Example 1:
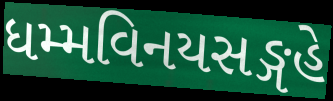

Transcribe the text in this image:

ધમ્મવિનયસઙ્ગહે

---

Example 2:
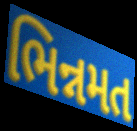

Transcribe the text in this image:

ભિન્નમત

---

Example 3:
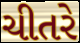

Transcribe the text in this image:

ચીતરે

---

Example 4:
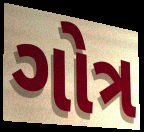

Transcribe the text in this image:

ગોત્ર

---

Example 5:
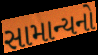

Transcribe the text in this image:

સામાન્યનો